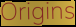
Origins